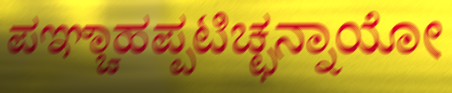
ಪಞ್ಚಾಹಪ್ಪಟಿಚ್ಛನ್ನಾಯೋ